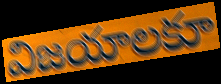
విజయాలకూ